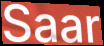
Saar